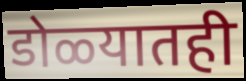
डोळ्यातही